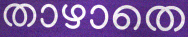
താഴാതെ